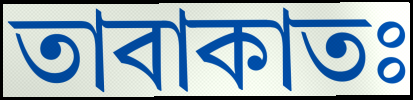
তাবাকাতঃ